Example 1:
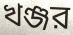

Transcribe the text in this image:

খঞ্জর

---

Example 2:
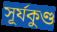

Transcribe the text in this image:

সূর্যকুণ্ড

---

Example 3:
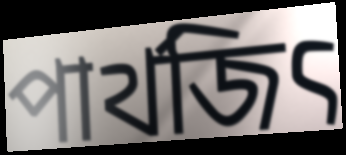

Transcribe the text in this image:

পার্থজিৎ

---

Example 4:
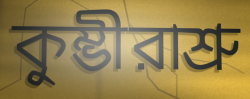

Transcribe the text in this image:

কুম্ভীরাশ্রু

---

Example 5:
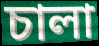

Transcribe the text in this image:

চালা